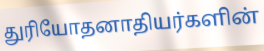
துரியோதனாதியர்களின்